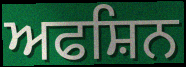
ਅਫਸ਼ਿਨ